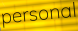
personal